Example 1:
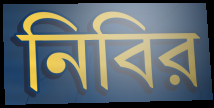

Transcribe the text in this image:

নিবির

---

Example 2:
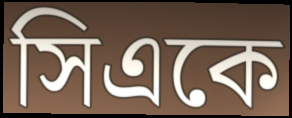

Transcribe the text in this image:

সিএকে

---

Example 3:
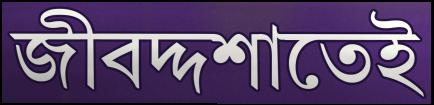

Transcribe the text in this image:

জীবদ্দশাতেই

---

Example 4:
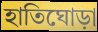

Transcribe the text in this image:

হাতিঘোড়া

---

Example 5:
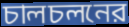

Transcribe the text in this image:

চালচলনের